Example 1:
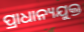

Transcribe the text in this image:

ପ୍ରାଧାନ୍ୟଯୁକ୍ତ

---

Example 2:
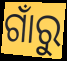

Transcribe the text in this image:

ଗାଁରୁ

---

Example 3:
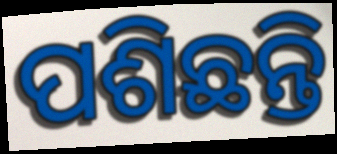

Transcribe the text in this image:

ପଶିଛନ୍ତି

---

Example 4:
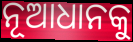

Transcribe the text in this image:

ନୂଆଧାନକୁ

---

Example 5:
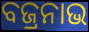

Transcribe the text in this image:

ବଜ୍ରନାଭ